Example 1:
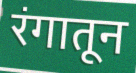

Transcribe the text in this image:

रंगातून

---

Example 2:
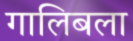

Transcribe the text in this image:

गालिबला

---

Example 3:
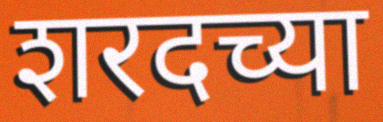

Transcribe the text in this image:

शरदच्या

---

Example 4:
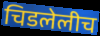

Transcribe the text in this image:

चिडलेलीच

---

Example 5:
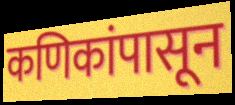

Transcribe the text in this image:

कणिकांपासून